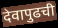
देवापुढची